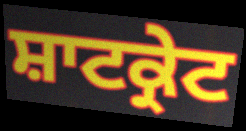
ਸ਼ਾਟਕ੍ਰੇਟ